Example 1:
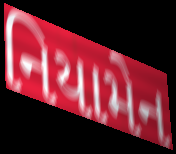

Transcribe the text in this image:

નિયામેન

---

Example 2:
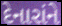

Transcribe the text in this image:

દેનારાંને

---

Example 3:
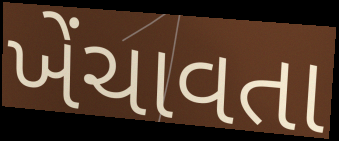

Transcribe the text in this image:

ખેંચાવતા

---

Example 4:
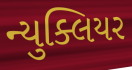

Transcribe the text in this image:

ન્યુક્લિયર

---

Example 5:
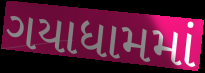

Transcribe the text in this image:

ગયાધામમાં